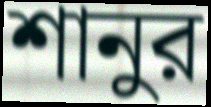
শানুর